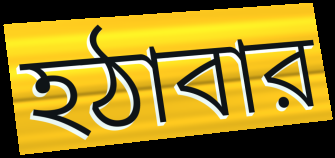
হঠাবার